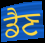
ਡੈਣ